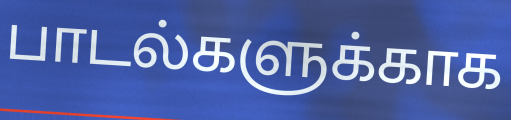
பாடல்களுக்காக